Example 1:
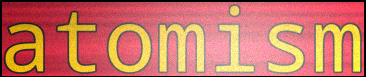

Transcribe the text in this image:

atomism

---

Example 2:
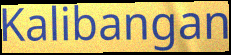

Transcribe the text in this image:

Kalibangan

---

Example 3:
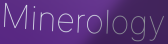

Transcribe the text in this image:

Minerology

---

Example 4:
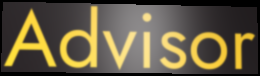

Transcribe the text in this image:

Advisor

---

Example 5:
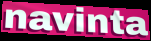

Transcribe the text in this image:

navinta